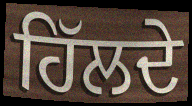
ਹਿੱਲਦੇ